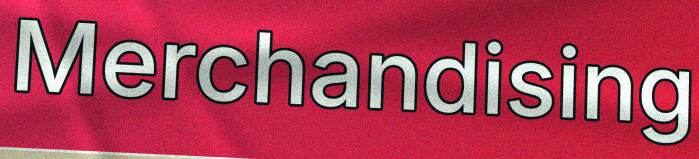
Merchandising